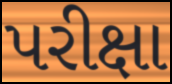
પરીક્ષા